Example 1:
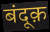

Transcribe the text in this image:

बंदूक़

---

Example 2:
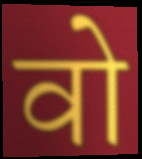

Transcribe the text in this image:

वो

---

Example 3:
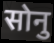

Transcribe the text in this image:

सोनु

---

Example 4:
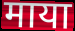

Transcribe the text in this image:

माया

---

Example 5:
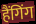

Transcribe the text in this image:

हैंगिंग